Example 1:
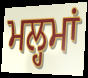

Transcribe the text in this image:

ਮਲ੍ਹਮਾਂ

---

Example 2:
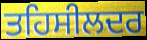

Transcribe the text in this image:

ਤਹਿਸੀਲਦਰ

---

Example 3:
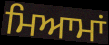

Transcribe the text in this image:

ਮਿਆਮਾਂ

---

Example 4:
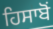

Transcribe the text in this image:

ਹਿਸਾਬੋਂ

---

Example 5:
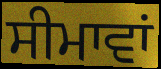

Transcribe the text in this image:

ਸੀਮਾਵਾਂ